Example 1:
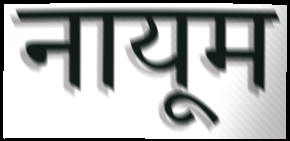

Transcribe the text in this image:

नायूम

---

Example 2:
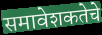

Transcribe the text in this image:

समावेशकतेचे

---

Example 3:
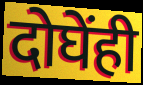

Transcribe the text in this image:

दोघेंही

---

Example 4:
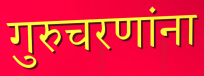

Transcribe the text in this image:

गुरुचरणांना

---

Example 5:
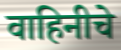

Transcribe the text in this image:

वाहिनीचे